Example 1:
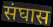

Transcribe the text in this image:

संघास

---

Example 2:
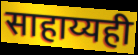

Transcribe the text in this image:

साहाय्यही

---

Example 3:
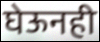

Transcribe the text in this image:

घेऊनही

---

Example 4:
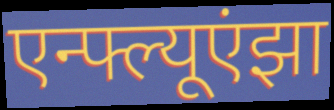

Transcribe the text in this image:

एन्फ्ल्यूएंझा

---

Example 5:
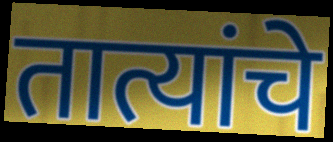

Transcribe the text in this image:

तात्यांचे